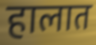
हालात